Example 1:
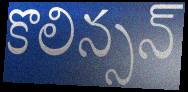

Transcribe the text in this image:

కొలిన్సన్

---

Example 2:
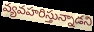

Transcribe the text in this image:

వ్యవహరిస్తున్నాడని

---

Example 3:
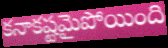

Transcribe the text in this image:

కనాకష్టమైపోయింది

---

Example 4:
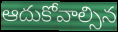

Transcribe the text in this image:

ఆదుకోవాల్సిన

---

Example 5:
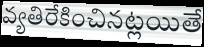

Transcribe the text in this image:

వ్యతిరేకించినట్లయితే